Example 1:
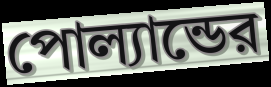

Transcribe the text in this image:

পোল্যান্ডের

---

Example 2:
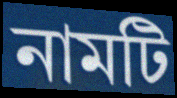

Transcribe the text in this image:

নামটি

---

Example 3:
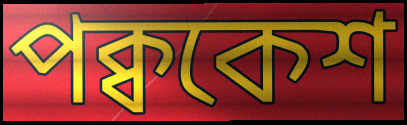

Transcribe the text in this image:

পক্বকেশ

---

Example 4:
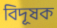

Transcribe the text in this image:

বিদূষক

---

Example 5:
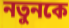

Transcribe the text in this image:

নতুনকে